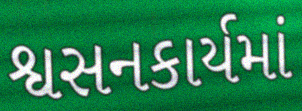
શ્વસનકાર્યમાં